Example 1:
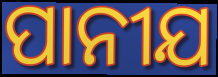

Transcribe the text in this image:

ପାନୀଯ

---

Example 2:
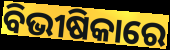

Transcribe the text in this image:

ବିଭୀଷିକାରେ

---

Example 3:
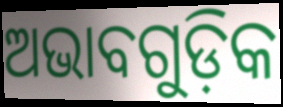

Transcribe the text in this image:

ଅଭାବଗୁଡ଼ିକ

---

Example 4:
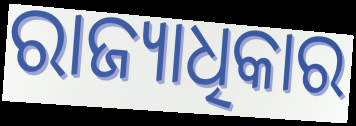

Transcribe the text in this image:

ରାଜ୍ୟାଧିକାର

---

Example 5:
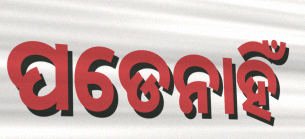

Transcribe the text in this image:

ପଡେନାହିଁ